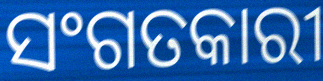
ସଂଗତକାରୀ